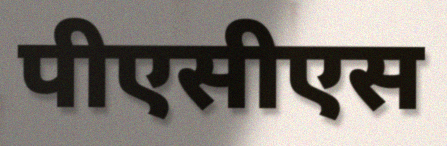
पीएसीएस